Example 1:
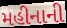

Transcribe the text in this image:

મહીનાની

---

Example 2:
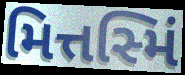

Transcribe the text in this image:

મિત્તસ્મિં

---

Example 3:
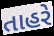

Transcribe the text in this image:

તાહરે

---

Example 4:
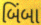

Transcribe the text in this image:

બિંબા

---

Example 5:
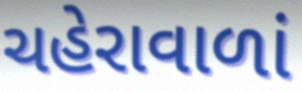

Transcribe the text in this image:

ચહેરાવાળાં